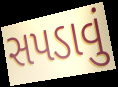
સપડાવું